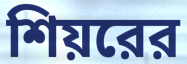
শিয়রের